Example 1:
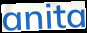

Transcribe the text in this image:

anita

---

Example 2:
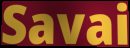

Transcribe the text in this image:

Savai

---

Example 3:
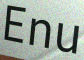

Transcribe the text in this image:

Enu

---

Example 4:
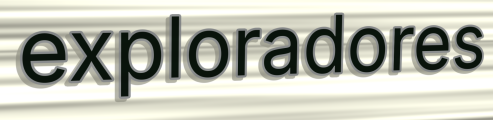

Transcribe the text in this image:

exploradores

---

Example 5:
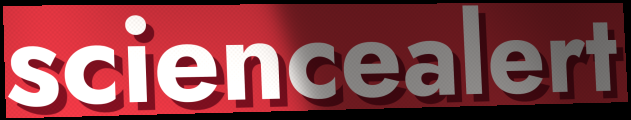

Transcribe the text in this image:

sciencealert